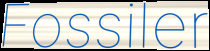
Fossiler